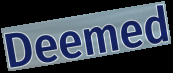
Deemed